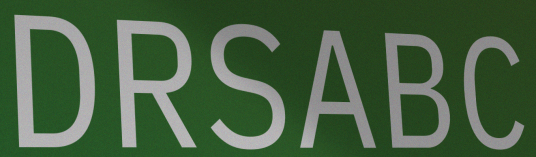
DRSABC